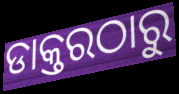
ଡାକ୍ତରଠାରୁ